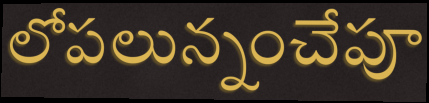
లోపలున్నంచేపూ